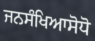
ਜਨਸੰਖਿਆਸੋਧੋ